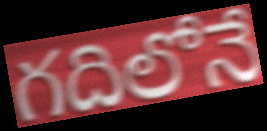
గదిలోనే